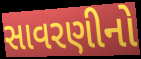
સાવરણીનો